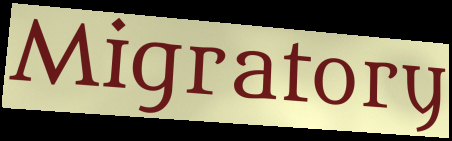
Migratory